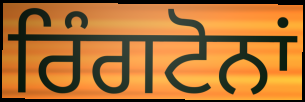
ਰਿੰਗਟੋਨਾਂ